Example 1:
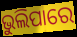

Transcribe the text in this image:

ଭୁଲିପାରେ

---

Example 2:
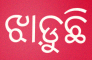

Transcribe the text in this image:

ଝାଡ଼ୁଛି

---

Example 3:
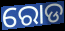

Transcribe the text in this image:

ରୋଡ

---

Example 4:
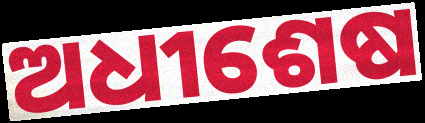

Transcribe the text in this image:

ଅଧୀଶେଷ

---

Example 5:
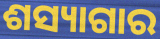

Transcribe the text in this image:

ଶସ୍ୟାଗାର